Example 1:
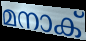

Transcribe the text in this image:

മനാക്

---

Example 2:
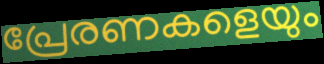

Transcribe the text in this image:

പ്രേരണകളെയും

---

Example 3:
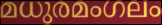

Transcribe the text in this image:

മധുരമംഗലം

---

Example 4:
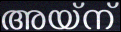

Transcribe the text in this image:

അയ്ന്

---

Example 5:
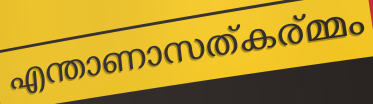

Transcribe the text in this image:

എന്താണാസത്കര്മ്മം